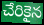
చేరికైన